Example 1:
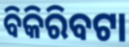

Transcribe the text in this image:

ବିକିରିବଟା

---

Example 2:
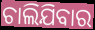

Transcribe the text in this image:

ଚାଲିଯିବାର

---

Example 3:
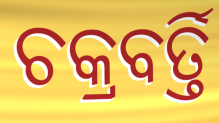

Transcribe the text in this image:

ଚକ୍ରବର୍ତ୍ତି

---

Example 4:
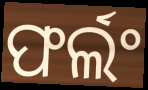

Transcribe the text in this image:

ଫର୍ଲଂ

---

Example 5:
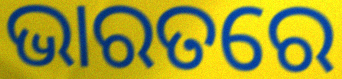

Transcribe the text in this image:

ଭାରତରେ